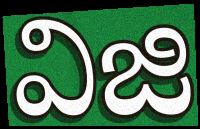
విజి